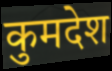
कुमदेश